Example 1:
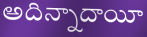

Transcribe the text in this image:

అదిన్నాదాయీ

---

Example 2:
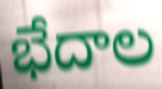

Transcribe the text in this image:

భేదాల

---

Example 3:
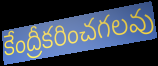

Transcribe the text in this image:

కేంద్రీకరించగలవు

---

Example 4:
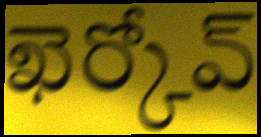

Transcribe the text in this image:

ఖెర్కోవ్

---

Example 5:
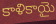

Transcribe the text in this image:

కాళికాయై